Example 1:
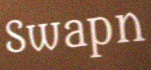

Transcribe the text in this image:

Swapn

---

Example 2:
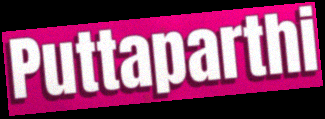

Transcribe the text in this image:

Puttaparthi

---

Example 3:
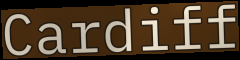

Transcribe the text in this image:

Cardiff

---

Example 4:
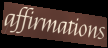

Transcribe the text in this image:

affirmations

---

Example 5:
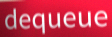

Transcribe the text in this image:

dequeue